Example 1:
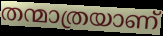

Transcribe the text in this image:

തന്മാത്രയാണ്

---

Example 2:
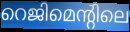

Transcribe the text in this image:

റെജിമെന്റിലെ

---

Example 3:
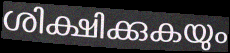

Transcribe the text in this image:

ശിക്ഷിക്കുകയും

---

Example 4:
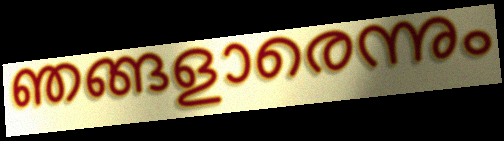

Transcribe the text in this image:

ഞങ്ങളാരെന്നും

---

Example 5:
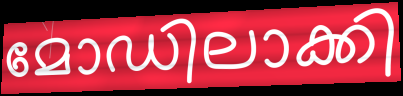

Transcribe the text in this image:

മോഡിലാക്കി